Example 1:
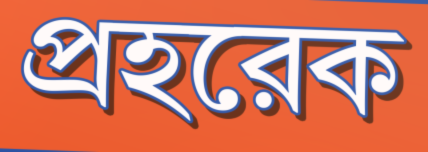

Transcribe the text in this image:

প্রহরেক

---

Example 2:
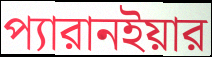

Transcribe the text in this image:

প্যারানইয়ার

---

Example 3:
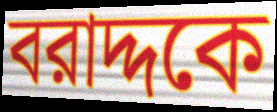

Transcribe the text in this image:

বরাদ্দকে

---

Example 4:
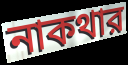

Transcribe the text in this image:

নাকথার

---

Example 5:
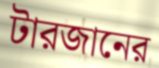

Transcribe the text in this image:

টারজানের